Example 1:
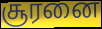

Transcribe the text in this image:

சூரனை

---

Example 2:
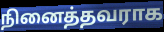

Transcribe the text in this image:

நினைத்தவராக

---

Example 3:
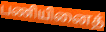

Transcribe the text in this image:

பணியினைத்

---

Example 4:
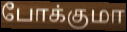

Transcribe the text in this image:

போக்குமா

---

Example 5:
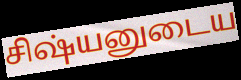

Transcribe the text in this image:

சிஷ்யனுடைய